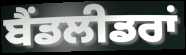
ਬੈਂਡਲੀਡਰਾਂ